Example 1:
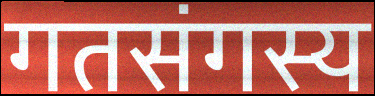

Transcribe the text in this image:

गतसंगस्य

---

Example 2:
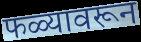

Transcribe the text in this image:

फळ्यावरून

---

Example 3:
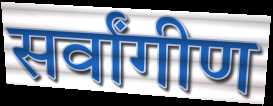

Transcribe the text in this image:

सर्वांगीण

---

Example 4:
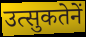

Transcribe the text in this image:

उत्सुकतेनें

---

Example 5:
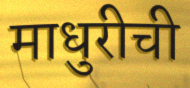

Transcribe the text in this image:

माधुरीची